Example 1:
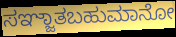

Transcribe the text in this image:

ಸಞ್ಜಾತಬಹುಮಾನೋ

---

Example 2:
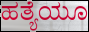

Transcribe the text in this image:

ಹತ್ಯೆಯೂ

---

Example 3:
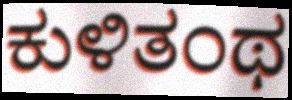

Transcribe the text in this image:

ಕುಳಿತಂಥ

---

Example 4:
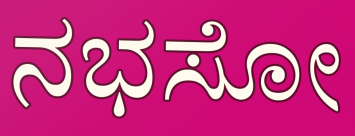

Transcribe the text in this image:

ನಭಸೋ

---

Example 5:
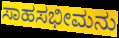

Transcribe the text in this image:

ಸಾಹಸಭೀಮನು